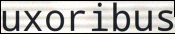
uxoribus